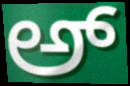
ಅ್